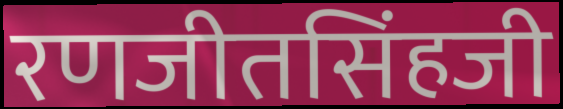
रणजीतसिंहजी